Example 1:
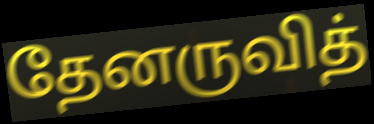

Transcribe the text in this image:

தேனருவித்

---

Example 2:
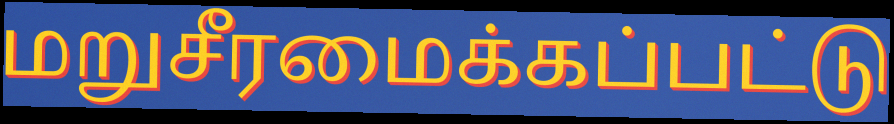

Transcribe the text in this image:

மறுசீரமைக்கப்பட்டு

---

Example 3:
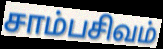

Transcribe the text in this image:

சாம்பசிவம்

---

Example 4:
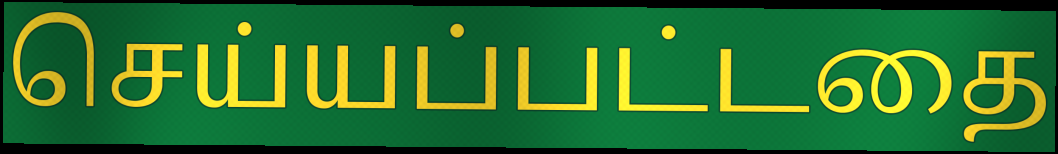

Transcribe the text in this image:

செய்யப்பட்டதை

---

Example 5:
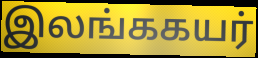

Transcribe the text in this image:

இலங்ககயர்